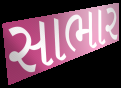
સાભાર